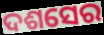
ଦଶସେର